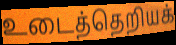
உடைத்தெறியக்